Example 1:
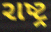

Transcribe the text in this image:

રાષ્ટ્ર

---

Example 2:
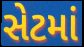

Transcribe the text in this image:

સેટમાં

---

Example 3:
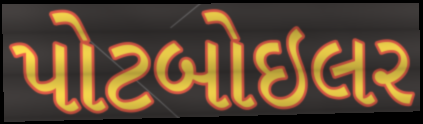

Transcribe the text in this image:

પોટબોઇલર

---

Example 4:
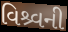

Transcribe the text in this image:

વિશ્ર્વની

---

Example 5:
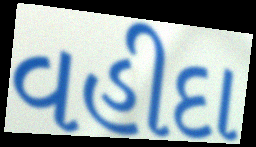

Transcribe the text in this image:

વહીદા